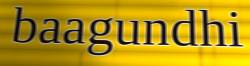
baagundhi